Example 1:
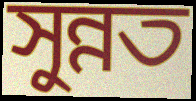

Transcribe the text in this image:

সুন্নত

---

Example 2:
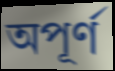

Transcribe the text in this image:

অপূর্ণ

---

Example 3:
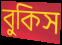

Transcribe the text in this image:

বুকিস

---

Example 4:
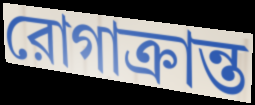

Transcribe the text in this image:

রোগাক্রান্ত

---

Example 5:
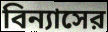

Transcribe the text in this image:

বিন্যাসের